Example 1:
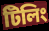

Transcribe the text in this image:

টিলিং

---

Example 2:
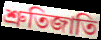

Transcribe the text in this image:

শ্রুতিজাতি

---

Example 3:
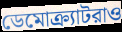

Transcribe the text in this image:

ডেমোক্র্যাটরাও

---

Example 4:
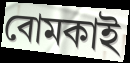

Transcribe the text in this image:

বোমকাই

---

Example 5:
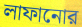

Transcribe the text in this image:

লাফানোর